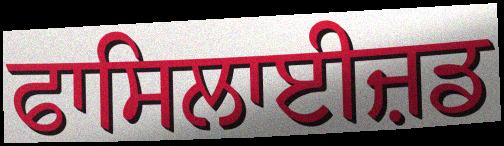
ਫਾਸਿਲਾਈਜ਼ਡ